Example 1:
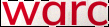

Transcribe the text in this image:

warc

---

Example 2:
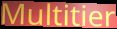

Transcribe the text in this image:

Multitier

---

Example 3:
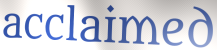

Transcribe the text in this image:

acclaimed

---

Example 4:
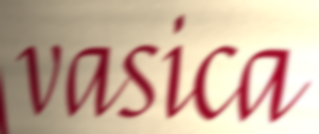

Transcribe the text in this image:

vasica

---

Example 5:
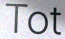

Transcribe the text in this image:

Tot